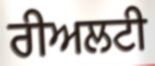
ਰੀਅਲਟੀ